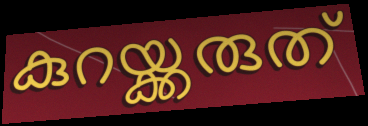
കുറയ്ക്കരുത്